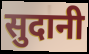
सुदानी